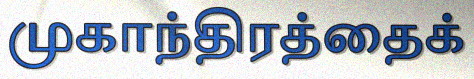
முகாந்திரத்தைக்